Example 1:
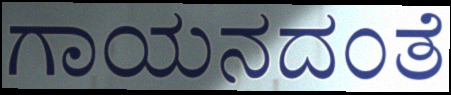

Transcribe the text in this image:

ಗಾಯನದಂತೆ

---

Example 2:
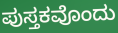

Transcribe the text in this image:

ಪುಸ್ತಕವೊಂದು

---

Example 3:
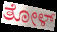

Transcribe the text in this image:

ತೋಳ್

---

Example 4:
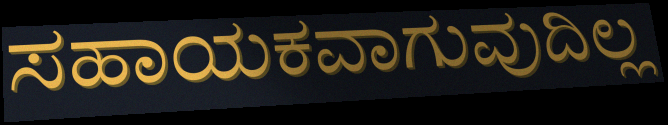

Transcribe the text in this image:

ಸಹಾಯಕವಾಗುವುದಿಲ್ಲ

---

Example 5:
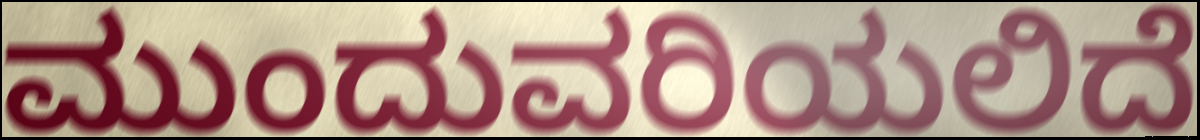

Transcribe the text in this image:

ಮುಂದುವರಿಯಲಿದೆ